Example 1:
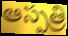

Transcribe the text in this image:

ఆస్పత్రి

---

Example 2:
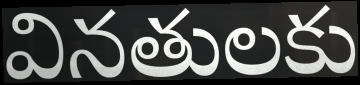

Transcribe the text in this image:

వినతులకు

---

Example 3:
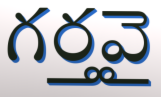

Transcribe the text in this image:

గర్తవై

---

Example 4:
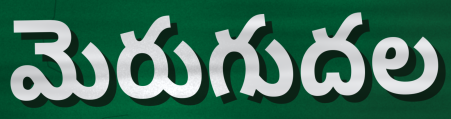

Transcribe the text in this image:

మెరుగుదల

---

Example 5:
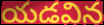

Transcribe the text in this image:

యడవిన